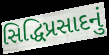
સિદ્ધિપ્રસાદનું